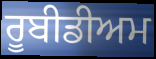
ਰੂਬੀਡੀਅਮ